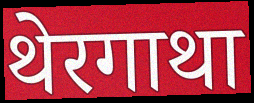
थेरगाथा